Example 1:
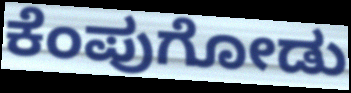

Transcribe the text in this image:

ಕೆಂಪುಗೋಡು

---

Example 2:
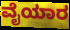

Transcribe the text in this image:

ವೈಯಾರ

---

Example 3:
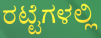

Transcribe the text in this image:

ರಟ್ಟೆಗಳಲ್ಲಿ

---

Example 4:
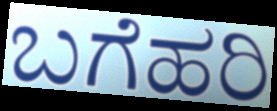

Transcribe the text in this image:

ಬಗೆಹರಿ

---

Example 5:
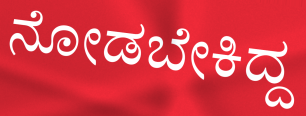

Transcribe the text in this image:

ನೋಡಬೇಕಿದ್ದ